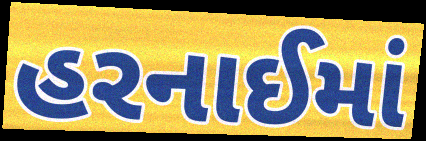
હરનાઈમાં